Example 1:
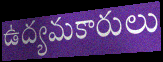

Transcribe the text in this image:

ఉద్యమకారులు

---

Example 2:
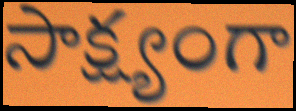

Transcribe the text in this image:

సాక్ష్యంగా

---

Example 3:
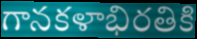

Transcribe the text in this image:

గానకళాభిరతికి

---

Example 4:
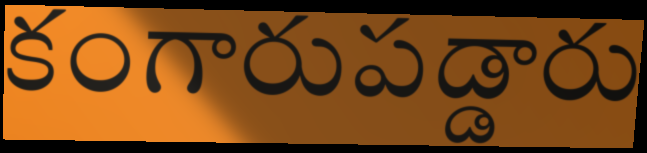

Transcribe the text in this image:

కంగారుపడ్డారు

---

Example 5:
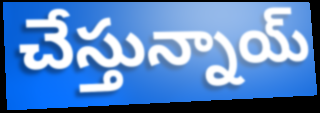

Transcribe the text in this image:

చేస్తున్నాయ్